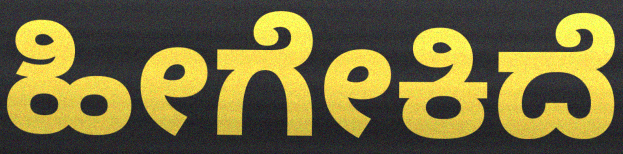
ಹೀಗೇಕಿದೆ